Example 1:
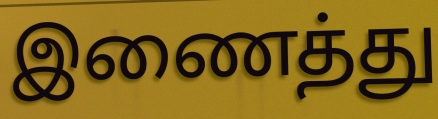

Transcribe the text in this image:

இணைத்து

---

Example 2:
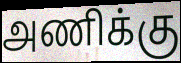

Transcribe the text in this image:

அணிக்கு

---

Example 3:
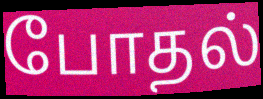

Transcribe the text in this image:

போதல்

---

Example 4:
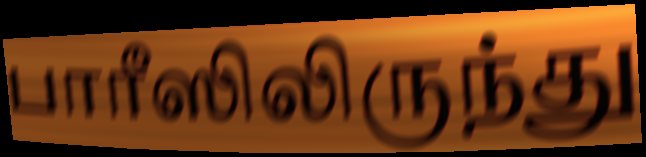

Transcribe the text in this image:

பாரீஸிலிருந்து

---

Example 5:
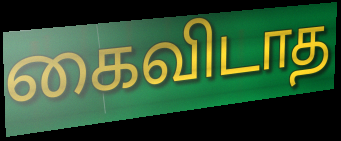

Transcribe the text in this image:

கைவிடாத